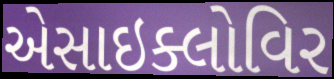
એસાઇક્લોવિર